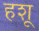
हशू